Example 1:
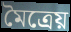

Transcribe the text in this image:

মৈত্রেয়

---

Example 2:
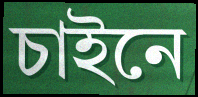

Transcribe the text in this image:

চাইনে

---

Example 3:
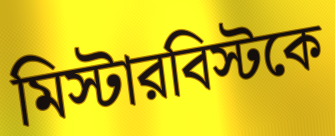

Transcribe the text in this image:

মিস্টারবিস্টকে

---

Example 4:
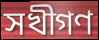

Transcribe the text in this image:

সখীগণ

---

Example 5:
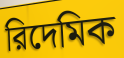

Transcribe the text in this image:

রিদেমিক